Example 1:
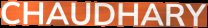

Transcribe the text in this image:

CHAUDHARY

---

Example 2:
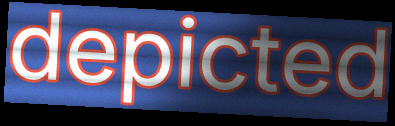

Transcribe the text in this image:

depicted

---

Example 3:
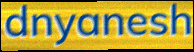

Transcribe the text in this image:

dnyanesh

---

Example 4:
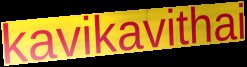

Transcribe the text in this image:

kavikavithai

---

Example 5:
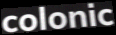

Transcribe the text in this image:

colonic